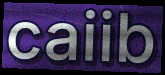
caiib